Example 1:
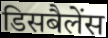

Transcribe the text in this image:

डिसबैलेंस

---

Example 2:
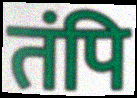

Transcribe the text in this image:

तंपि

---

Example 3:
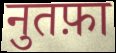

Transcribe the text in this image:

नुतफ़ा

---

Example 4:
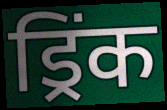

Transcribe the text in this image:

ड्रिंक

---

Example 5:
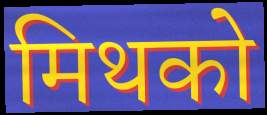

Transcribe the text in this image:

मिथको